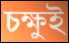
চক্ষুই